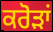
ਕਰੋਡ਼ਾਂ